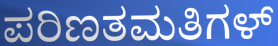
ಪರಿಣತಮತಿಗಳ್